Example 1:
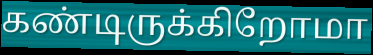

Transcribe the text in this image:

கண்டிருக்கிறோமா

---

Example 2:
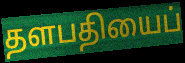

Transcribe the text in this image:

தளபதியைப்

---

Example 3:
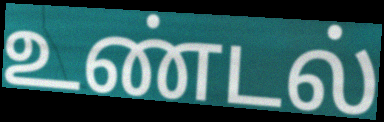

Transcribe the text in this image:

உண்டல்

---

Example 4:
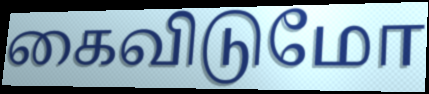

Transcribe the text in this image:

கைவிடுமோ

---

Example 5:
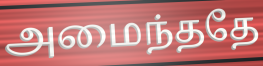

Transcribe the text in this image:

அமைந்ததே